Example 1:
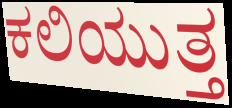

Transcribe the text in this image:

ಕಲಿಯುತ್ತ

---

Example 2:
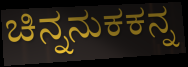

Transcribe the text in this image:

ಚಿನ್ನನುಕಕನ್ನ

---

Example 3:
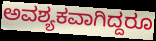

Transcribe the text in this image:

ಅವಶ್ಯಕವಾಗಿದ್ದರೂ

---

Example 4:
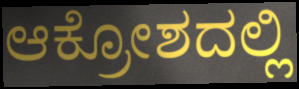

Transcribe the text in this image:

ಆಕ್ರೋಶದಲ್ಲಿ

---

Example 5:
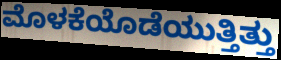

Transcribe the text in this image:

ಮೊಳಕೆಯೊಡೆಯುತ್ತಿತ್ತು